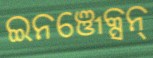
ଇନଞ୍ଜେକ୍ସନ୍